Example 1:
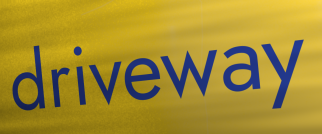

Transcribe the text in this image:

driveway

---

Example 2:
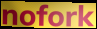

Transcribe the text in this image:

nofork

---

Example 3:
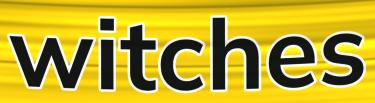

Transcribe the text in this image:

witches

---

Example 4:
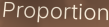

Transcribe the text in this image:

Proportion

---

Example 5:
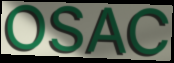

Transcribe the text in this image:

OSAC